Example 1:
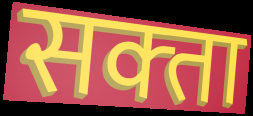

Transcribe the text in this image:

सक्‍ता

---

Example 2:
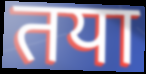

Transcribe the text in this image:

तया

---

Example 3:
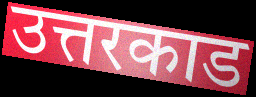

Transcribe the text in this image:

उत्तरकाड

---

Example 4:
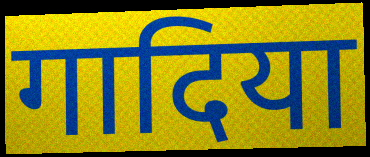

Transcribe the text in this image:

गादिया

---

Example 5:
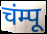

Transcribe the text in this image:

चंम्पू